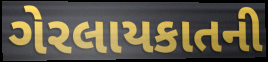
ગેરલાયકાતની